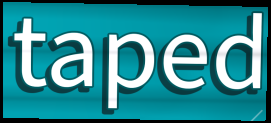
taped